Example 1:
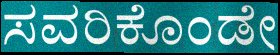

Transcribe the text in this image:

ಸವರಿಕೊಂಡೇ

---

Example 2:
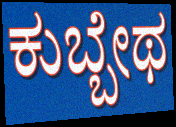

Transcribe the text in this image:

ಕುಬ್ಬೇಥ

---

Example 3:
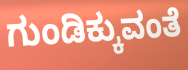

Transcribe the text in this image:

ಗುಂಡಿಕ್ಕುವಂತೆ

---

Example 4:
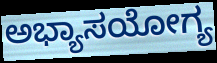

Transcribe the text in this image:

ಅಭ್ಯಾಸಯೋಗ್ಯ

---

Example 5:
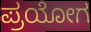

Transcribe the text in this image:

ಪ್ರಯೋಗ